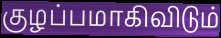
குழப்பமாகிவிடும்